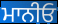
ਮਾਨੀਓ